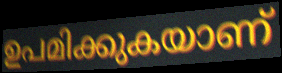
ഉപമിക്കുകയാണ്